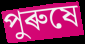
পুৰুষে